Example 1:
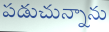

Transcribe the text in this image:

పడుచున్నాను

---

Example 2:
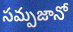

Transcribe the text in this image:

సమ్పజానో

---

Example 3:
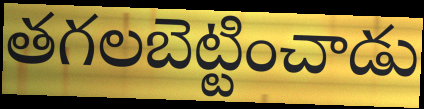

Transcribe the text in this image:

తగలబెట్టించాడు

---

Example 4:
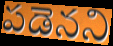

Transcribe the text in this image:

పడెనని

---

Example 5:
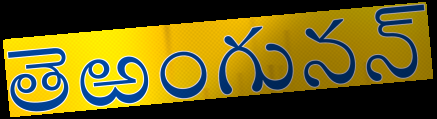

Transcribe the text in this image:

తెఱంగునన్